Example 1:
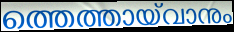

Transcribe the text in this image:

ത്തെത്തായ്‌വാനും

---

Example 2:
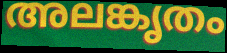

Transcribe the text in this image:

അലങ്കൃതം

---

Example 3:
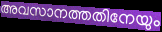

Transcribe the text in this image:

അവസാനത്തതിനേയും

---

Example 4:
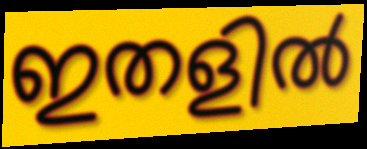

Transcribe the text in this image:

ഇതളിൽ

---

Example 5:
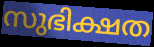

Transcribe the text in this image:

സുഭിക്ഷത